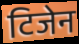
टिजेन